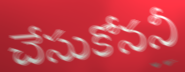
చేసుకోననీ